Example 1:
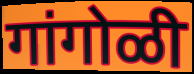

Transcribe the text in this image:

गांगोळी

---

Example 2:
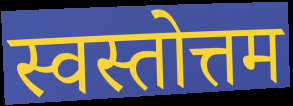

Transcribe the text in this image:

स्वस्तोत्तम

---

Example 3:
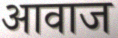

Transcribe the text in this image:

आवाज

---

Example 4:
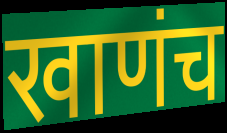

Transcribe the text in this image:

खाणंच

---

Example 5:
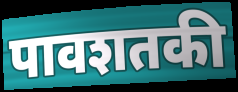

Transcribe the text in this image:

पावशतकी